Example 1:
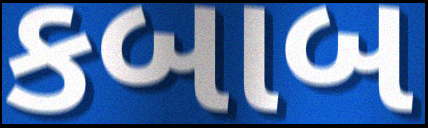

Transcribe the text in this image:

કબાબ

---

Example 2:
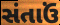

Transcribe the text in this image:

સંતાઉં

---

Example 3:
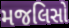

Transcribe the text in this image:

મજલિસો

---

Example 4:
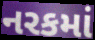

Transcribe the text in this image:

નરકમાં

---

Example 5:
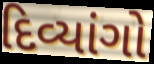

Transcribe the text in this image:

દિવ્યાંગો